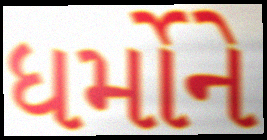
ધર્મોને